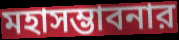
মহাসম্ভাবনার